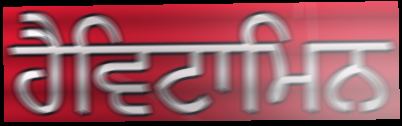
ਹੈਵਿਟਾਮਿਨ